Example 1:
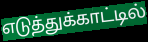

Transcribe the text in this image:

எடுத்துக்காட்டில்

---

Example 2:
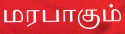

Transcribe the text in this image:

மரபாகும்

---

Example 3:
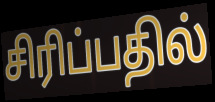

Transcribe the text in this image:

சிரிப்பதில்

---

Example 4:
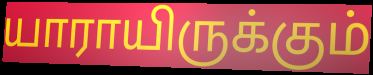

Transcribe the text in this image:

யாராயிருக்கும்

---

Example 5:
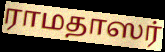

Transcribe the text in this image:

ராமதாஸர்